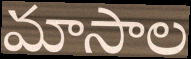
మాసాల